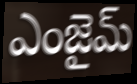
ఎంజైమ్